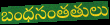
బంధసంతతులు